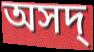
অসদ্